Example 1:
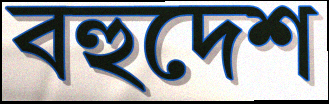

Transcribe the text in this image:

বহুদেশ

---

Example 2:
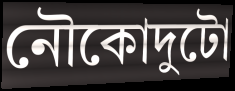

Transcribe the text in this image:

নৌকোদুটো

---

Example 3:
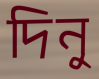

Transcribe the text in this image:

দিনু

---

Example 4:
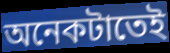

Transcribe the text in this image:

অনেকটাতেই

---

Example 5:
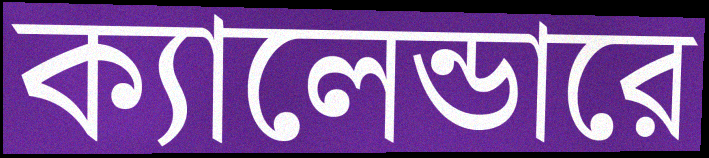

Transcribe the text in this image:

ক্যালেন্ডারে